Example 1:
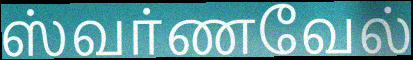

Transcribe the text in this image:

ஸ்வர்ணவேல்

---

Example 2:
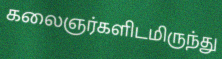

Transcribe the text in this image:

கலைஞர்களிடமிருந்து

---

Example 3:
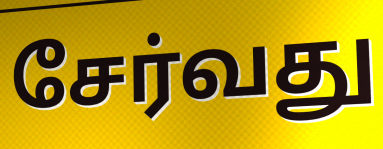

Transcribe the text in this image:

சேர்வது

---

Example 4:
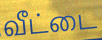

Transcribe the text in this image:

வீட்டை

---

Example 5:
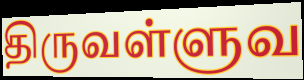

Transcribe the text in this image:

திருவள்ளுவ